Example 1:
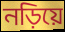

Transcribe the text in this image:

নড়িয়ে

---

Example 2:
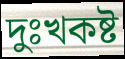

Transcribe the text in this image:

দুঃখকষ্ট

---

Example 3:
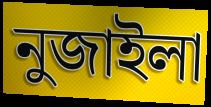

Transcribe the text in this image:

নুজাইলা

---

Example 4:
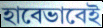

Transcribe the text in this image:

হাবেভাবেই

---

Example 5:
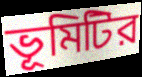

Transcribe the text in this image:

ভূমিটির